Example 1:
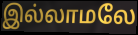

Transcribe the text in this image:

இல்லாமலே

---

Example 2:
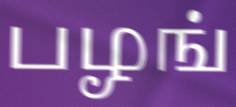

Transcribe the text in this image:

பழங்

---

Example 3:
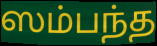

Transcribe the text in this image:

ஸம்பந்த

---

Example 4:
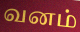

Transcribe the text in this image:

வனம்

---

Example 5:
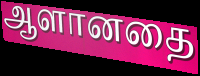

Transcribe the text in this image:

ஆளானதை